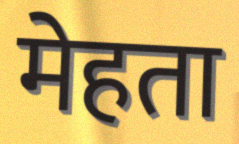
मेहता